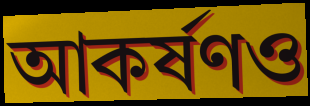
আকর্ষণও